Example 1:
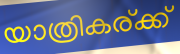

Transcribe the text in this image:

യാത്രികര്ക്ക്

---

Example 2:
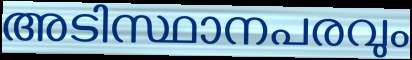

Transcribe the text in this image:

അടിസ്ഥാനപരവും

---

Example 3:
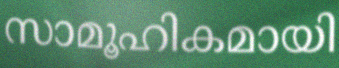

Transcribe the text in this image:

സാമൂഹികമായി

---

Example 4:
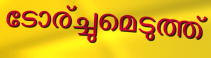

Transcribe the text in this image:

ടോര്ച്ചുമെടുത്ത്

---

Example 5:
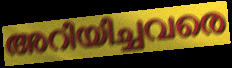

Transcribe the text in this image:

അറിയിച്ചവരെ